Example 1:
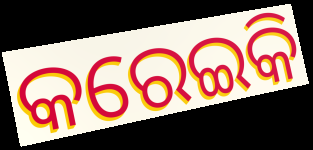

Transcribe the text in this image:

କରେଇକି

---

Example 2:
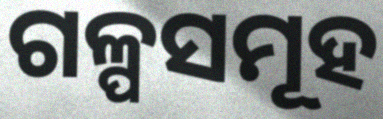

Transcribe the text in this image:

ଗଳ୍ପସମୂହ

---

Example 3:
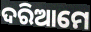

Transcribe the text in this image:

ଦରିଆମେ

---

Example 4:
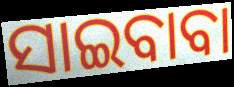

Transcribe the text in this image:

ସାଇବାବା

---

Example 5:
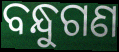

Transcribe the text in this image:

ବନ୍ଧୁଗଣ